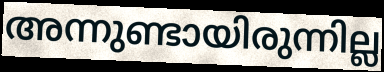
അന്നുണ്ടായിരുന്നില്ല